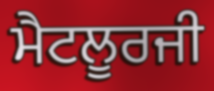
ਮੈਟਲੂਰਜੀ